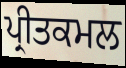
ਪ੍ਰੀਤਕਮਲ